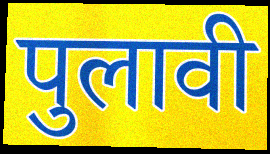
पुलावी